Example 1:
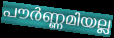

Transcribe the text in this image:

പൗർണ്ണമിയല്ല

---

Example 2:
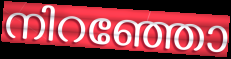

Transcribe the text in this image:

നിറഞ്ഞോ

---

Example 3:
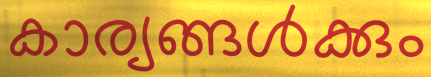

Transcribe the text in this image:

കാര്യങ്ങൾക്കും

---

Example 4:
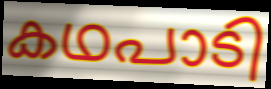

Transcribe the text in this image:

കഥപാടി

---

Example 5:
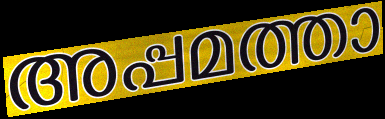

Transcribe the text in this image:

അപ്പമത്താ